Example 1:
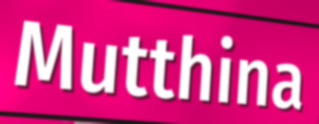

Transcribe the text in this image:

Mutthina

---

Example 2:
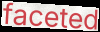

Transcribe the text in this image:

faceted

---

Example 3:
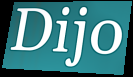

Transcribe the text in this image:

Dijo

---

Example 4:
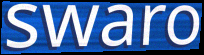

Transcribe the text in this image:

swaro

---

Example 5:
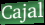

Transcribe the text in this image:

Cajal